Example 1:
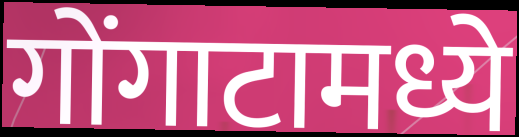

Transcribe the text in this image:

गोंगाटामध्ये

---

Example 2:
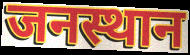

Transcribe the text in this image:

जनस्थान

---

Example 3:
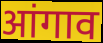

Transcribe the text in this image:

आंगाव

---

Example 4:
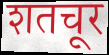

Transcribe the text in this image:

शतचूर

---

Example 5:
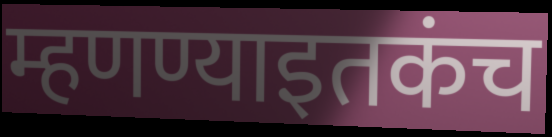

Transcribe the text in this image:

म्हणण्याइतकंच